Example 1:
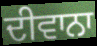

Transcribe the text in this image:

ਦੀਵਾਨਾ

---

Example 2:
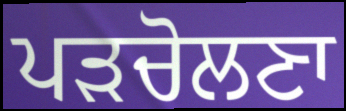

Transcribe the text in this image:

ਪੜਚੋਲਣਾ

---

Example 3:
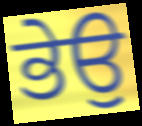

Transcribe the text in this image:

ਭੇਉ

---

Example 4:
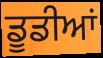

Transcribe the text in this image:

ਡੂਡੀਆਂ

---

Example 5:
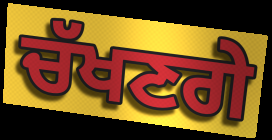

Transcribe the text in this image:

ਚੱਖਣਗੇ